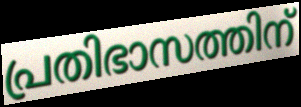
പ്രതിഭാസത്തിന്